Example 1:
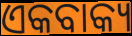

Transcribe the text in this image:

ଏକବାକ୍ୟ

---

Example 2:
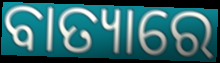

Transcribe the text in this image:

ବାତ୍ୟାରେ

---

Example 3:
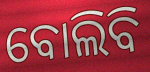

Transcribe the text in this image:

ବୋଲିବି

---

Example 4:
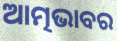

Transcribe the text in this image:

ଆତ୍ମଭାବର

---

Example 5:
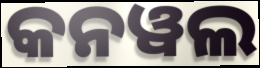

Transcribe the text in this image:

କନୱଲ